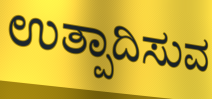
ಉತ್ಪಾದಿಸುವ